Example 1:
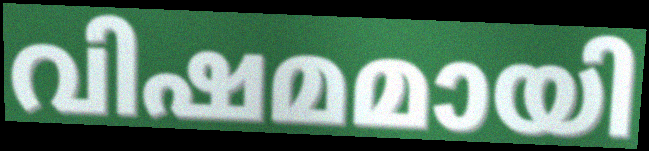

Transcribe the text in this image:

വിഷമമായി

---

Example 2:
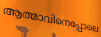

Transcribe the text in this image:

ആത്മാവിനെപ്പോലെ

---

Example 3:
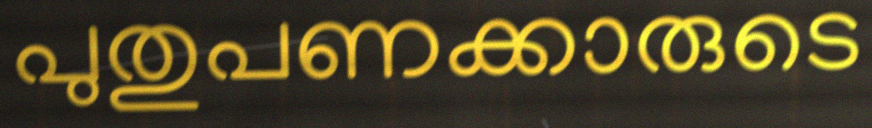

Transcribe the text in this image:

പുതുപണക്കാരുടെ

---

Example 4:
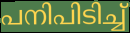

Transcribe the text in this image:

പനിപിടിച്ച്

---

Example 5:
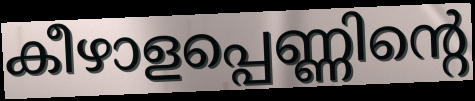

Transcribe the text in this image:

കീഴാളപ്പെണ്ണിന്റെ